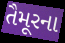
તૈમૂરના